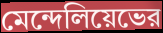
মেন্দেলিয়েভের